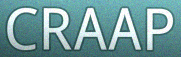
CRAAP